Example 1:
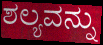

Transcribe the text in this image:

ಶಲ್ಯವನ್ನು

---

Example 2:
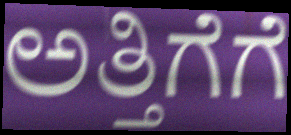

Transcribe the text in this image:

ಅತ್ತಿಗೆಗೆ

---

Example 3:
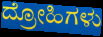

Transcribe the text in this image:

ದ್ರೋಹಿಗಳು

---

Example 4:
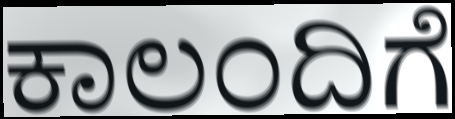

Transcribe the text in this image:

ಕಾಲಂದಿಗೆ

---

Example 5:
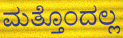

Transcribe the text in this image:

ಮತ್ತೊಂದಲ್ಲ